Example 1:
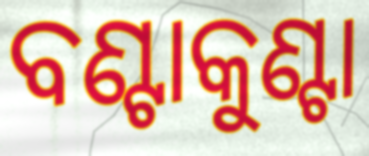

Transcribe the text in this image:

ବଣ୍ଟାକୁଣ୍ଟା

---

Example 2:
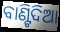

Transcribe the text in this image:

ବାଣ୍ଟିଦିଆ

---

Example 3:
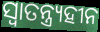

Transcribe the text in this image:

ସ୍ଵାତନ୍ତ୍ର୍ୟହୀନ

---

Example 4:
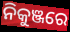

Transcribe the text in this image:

ନିକୁଞ୍ଜରେ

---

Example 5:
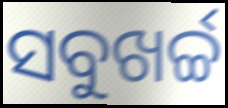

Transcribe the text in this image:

ସବୁଖର୍ଚ୍ଚ